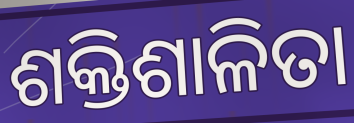
ଶକ୍ତିଶାଳିତା